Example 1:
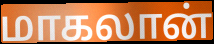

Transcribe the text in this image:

மாகலான்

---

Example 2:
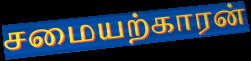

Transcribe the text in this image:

சமையற்காரன்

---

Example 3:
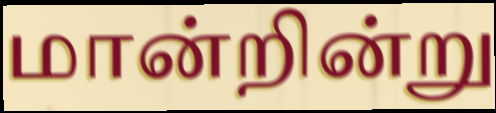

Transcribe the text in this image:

மான்றின்று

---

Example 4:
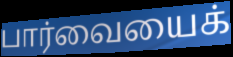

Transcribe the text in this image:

பார்வையைக்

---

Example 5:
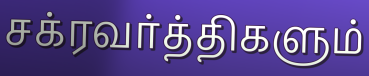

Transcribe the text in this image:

சக்ரவர்த்திகளும்